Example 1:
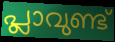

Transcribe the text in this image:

പ്ലാവുണ്ട്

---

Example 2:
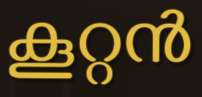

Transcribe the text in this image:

കൂറ്റൻ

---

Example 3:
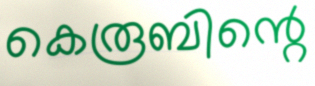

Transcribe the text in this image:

കെരൂബിന്റെ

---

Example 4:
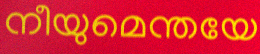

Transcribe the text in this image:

നീയുമെന്തയേ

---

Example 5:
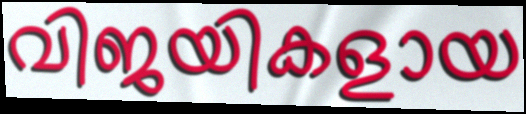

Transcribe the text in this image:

വിജയികളായ